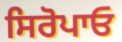
ਸਿਰੋਪਾਓ